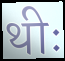
थीः